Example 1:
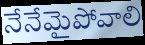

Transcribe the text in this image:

నేనేమైపోవాలి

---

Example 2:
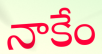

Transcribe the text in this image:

నాకేం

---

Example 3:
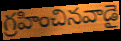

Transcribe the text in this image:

గ్రహించినవాడై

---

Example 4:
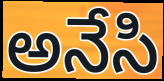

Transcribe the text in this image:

అనేసి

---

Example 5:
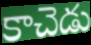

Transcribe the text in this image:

కాచెడు